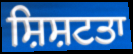
ਸ਼ਿਸ਼ਟਤਾ